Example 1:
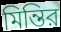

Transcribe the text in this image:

মিন্তির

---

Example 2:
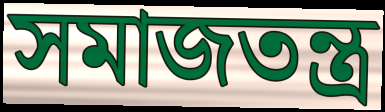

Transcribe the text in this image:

সমাজতন্ত্র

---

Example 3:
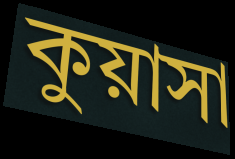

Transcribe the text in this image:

কুয়াসা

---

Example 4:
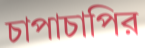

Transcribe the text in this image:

চাপাচাপির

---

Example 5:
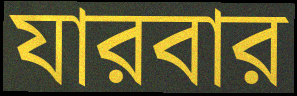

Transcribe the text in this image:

যারবার